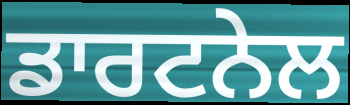
ਡਾਰਟਨੇਲ